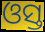
ଓସ୍ତ